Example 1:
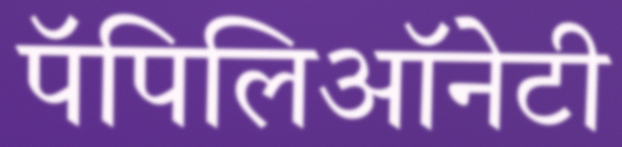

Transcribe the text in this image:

पॅपिलिऑनेटी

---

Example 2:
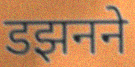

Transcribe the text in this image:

डझनने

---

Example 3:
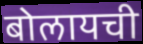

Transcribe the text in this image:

बोलायची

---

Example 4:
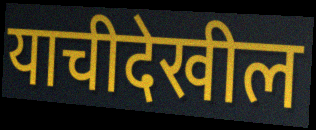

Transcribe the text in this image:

याचीदेखील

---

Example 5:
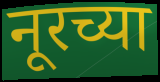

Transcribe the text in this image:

नूरच्या